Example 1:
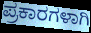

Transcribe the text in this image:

ಪ್ರಕಾರಗಳಾಗಿ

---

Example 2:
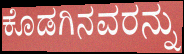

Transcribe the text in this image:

ಕೊಡಗಿನವರನ್ನು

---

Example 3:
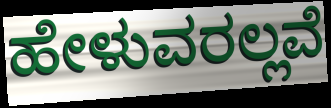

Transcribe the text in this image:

ಹೇಳುವರಲ್ಲವೆ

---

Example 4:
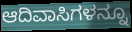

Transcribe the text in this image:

ಆದಿವಾಸಿಗಳನ್ನೂ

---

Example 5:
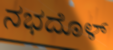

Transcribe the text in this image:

ನಭದೊಳ್